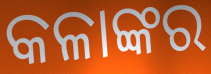
କଳାଙ୍କର